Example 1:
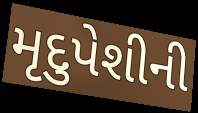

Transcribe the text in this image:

મૃદુપેશીની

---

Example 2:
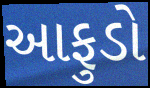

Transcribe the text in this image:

આફુડો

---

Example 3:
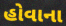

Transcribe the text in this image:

હોવાના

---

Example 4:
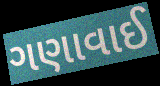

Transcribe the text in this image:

ગણાવાઈ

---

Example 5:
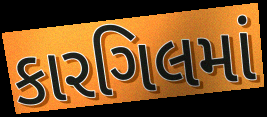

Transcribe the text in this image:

કારગિલમાં